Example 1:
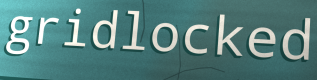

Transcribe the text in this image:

gridlocked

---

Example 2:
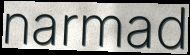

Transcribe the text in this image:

narmad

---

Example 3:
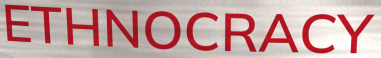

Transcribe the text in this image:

ETHNOCRACY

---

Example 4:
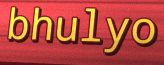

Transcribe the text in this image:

bhulyo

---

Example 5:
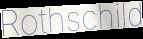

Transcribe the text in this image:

Rothschild